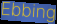
Ebbing